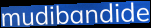
mudibandide